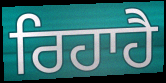
ਰਿਹਾਹੈ